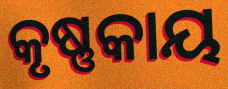
କୃଷ୍ଣକାୟ